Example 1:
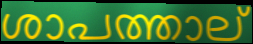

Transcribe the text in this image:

ശാപത്താല്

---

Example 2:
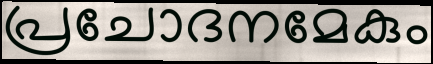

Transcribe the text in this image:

പ്രചോദനമേകും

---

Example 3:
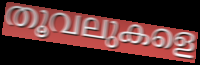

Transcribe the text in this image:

തൂവലുകളെ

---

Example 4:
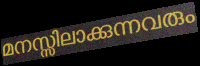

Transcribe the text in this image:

മനസ്സിലാക്കുന്നവരും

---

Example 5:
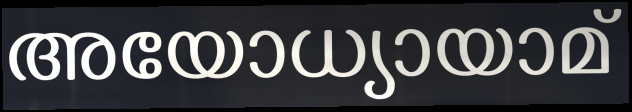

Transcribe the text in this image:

അയോധ്യായാമ്